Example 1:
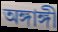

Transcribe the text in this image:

অঙ্গাঙ্গী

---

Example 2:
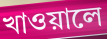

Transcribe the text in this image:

খাওয়ালে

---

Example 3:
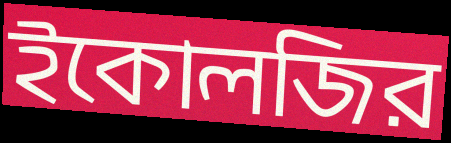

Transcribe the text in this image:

ইকোলজির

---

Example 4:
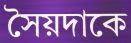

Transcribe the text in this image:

সৈয়দাকে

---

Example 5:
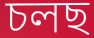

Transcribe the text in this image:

চলছ